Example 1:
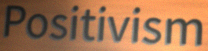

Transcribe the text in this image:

Positivism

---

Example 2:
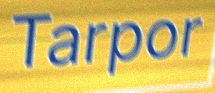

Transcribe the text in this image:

Tarpor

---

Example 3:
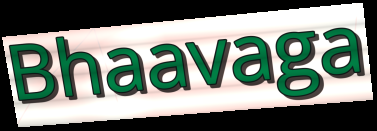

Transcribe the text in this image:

Bhaavaga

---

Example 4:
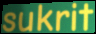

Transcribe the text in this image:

sukrit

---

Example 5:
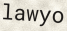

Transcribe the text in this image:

lawyo